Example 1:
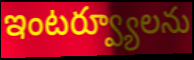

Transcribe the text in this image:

ఇంటర్వ్యూలను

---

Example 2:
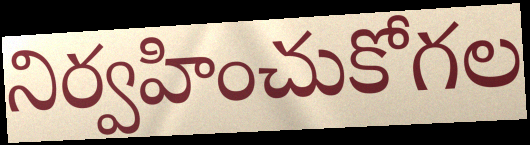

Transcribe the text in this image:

నిర్వహించుకోగల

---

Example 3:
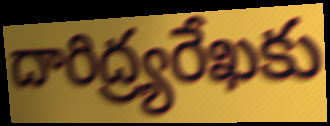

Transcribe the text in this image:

దారిద్ర్యరేఖకు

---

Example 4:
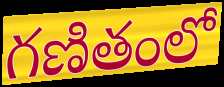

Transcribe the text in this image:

గణితంలో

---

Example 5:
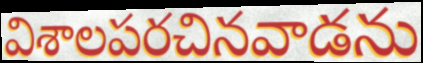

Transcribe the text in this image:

విశాలపరచినవాడను